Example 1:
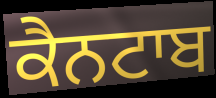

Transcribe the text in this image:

ਕੈਨਟਾਬ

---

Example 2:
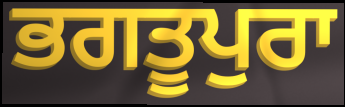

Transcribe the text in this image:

ਭਗਤੂਪੁਰਾ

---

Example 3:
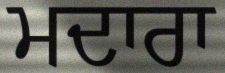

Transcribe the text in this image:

ਮਦਾਰਾ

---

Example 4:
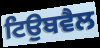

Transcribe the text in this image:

ਟਿਉਬਵੈਲ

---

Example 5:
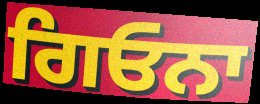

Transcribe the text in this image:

ਗਿਓਨਾ